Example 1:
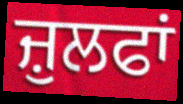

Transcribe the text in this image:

ਜ਼ੁਲਫਾਂ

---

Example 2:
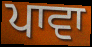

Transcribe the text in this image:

ਪਾਵਾ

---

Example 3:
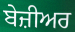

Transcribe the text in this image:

ਬੇਜ਼ੀਅਰ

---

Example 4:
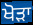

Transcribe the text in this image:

ਖੋੜਾ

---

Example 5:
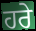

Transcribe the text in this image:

ਹਰੇ